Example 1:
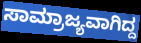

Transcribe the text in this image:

ಸಾಮ್ರಾಜ್ಯವಾಗಿದ್ದ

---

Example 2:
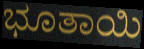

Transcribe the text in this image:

ಭೂತಾಯಿ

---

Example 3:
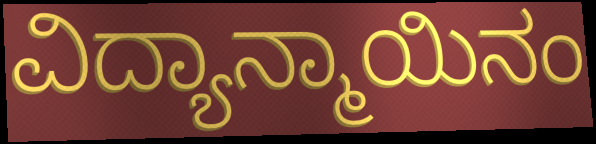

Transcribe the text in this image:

ವಿದ್ಯಾನ್ಮಾಯಿನಂ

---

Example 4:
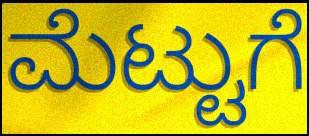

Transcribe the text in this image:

ಮೆಟ್ಟುಗೆ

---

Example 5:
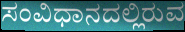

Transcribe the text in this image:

ಸಂವಿಧಾನದಲ್ಲಿರುವ